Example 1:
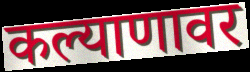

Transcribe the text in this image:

कल्याणावर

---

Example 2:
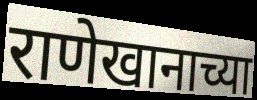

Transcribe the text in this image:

राणेखानाच्या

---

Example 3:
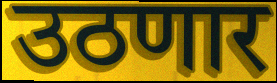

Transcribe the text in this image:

उठणार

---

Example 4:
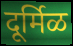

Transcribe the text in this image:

दूर्मिळ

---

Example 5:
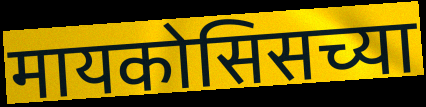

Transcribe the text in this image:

मायकोसिसच्या